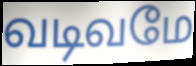
வடிவமே